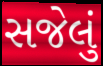
સજેલું